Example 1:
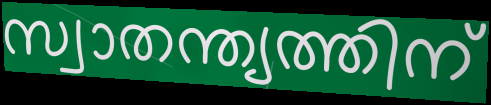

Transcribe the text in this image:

സ്വാതന്ത്യത്തിന്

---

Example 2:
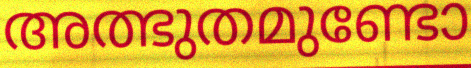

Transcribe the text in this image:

അത്ഭുതമുണ്ടോ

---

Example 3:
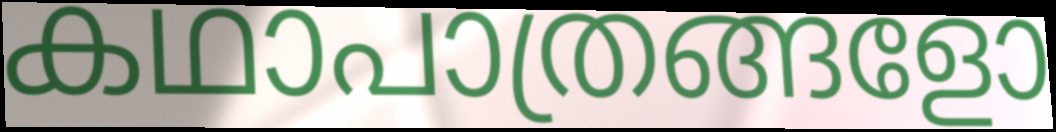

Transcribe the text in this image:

കഥാപാത്രങ്ങളോ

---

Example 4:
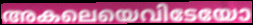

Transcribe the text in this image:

അകലെയെവിടേയോ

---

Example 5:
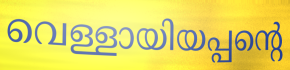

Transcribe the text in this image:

വെള്ളായിയപ്പന്റെ